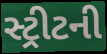
સ્ટ્રીટની